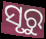
ସୃରୁ